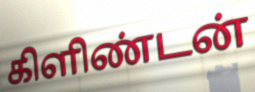
கிளிண்டன்